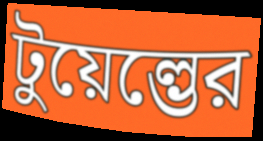
টুয়েল্ভের